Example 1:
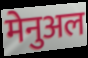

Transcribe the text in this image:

मेनुअल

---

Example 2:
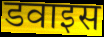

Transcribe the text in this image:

डवाइस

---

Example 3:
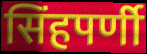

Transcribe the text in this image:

सिंहपर्णी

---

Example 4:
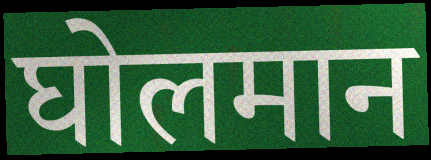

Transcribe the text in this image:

घोलमान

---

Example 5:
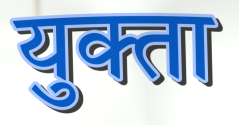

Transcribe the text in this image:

युक्ता